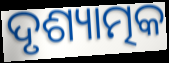
ଦୃଶ୍ୟାତ୍ମକ